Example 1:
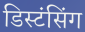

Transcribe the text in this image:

डिस्टंसिंग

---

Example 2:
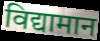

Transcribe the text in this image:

विद्यामान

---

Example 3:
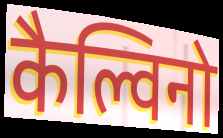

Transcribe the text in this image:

कैल्विनो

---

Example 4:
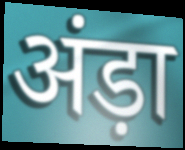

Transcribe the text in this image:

अंड़ा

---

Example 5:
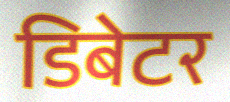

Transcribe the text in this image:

डिबेटर